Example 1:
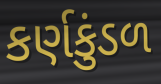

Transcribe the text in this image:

કર્ણકુંડળ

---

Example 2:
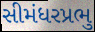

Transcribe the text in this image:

સીમંધરપ્રભુ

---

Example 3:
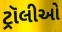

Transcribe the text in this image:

ટ્રૉલીઓ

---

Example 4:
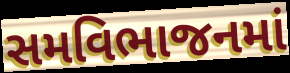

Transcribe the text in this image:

સમવિભાજનમાં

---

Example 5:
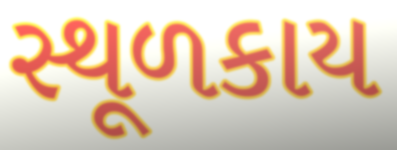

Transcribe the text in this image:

સ્થૂળકાય